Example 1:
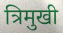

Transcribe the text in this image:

त्रिमुखी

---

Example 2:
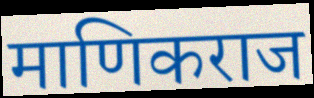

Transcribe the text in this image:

माणिकराज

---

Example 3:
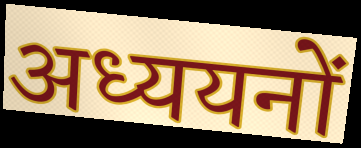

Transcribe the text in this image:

अध्ययनों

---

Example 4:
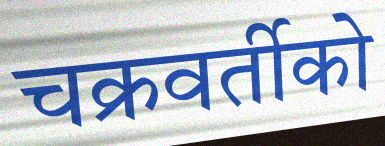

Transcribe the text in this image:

चक्रवर्तीको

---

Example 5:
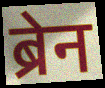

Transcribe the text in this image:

ब्रेन